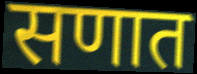
सणात